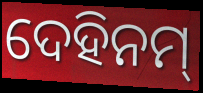
ଦେହିନମ୍